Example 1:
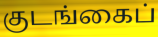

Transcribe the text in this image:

குடங்கைப்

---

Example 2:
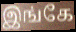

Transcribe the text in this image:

இங்கே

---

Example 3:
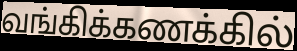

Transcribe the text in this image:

வங்கிக்கணக்கில்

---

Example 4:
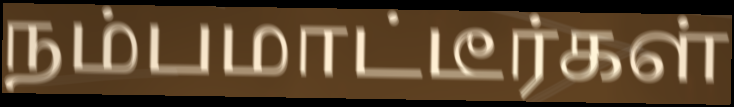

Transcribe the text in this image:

நம்பமாட்டீர்கள்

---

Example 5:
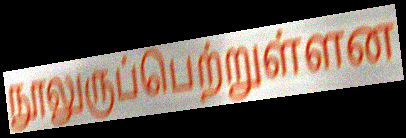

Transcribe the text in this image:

நூலுருப்பெற்றுள்ளன